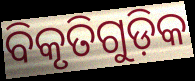
ବିକୃତିଗୁଡ଼ିକ